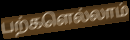
பற்களெல்லாம்